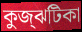
কুজ্‌ঝটিকা